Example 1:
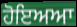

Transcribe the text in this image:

ਹੋਇਅਆ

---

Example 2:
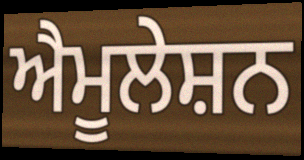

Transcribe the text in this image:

ਐਮੂਲੇਸ਼ਨ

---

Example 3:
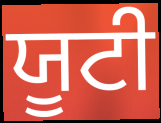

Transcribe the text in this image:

ਯੂਟੀ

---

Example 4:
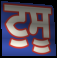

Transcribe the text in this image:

ਟੁਸੂ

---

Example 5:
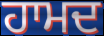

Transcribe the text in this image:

ਹਾਮਦ